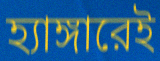
হ্যাঙ্গারেই